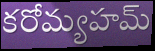
కరోమ్యహమ్